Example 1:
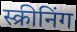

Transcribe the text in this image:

स्क्रीनिंग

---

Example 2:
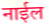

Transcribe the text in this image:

नाईल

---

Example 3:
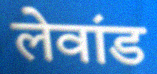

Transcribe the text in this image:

लेवांड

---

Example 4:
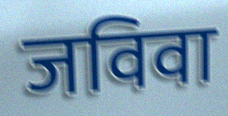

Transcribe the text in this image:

जविवा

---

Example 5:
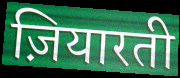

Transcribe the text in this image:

ज़ियारती